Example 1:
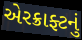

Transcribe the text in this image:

એરક્રાફ્ટનું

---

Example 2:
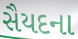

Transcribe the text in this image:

સૈયદના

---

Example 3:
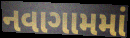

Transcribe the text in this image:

નવાગામમાં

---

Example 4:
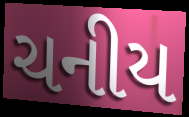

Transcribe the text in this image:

ચનીય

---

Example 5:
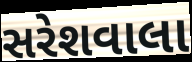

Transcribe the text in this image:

સરેશવાલા